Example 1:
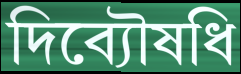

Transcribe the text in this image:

দিব্যৌষধি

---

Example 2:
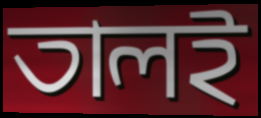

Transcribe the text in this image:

তালই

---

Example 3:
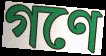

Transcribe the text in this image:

গণে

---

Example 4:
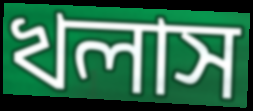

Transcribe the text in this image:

খলাস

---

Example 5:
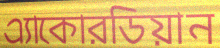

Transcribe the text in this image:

এ্যাকোরডিয়ান